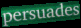
persuades